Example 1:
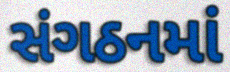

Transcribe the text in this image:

સંગઠનમાં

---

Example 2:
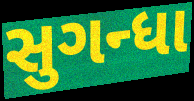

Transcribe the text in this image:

સુગન્ધા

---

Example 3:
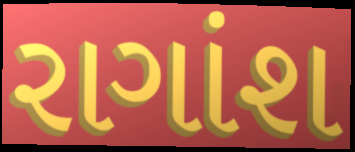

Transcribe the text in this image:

રાગાંશ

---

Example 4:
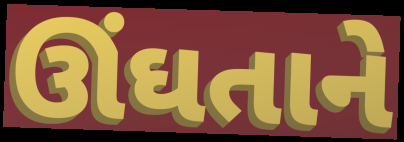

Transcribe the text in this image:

ઊંઘતાને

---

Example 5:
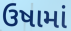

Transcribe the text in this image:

ઉષામાં